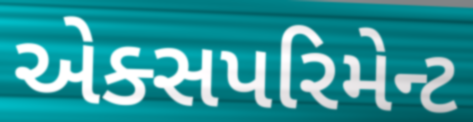
એક્સપરિમેન્ટ